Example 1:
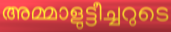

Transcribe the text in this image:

അമ്മാളുട്ടീച്ചറുടെ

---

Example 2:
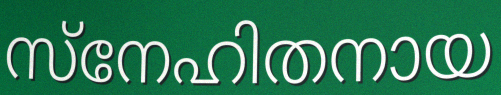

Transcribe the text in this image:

സ്നേഹിതനായ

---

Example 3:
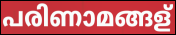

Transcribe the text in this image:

പരിണാമങ്ങള്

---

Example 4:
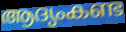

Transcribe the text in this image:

ആദ്യംകണ്ട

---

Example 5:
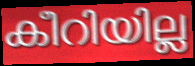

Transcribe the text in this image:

കീറിയില്ല